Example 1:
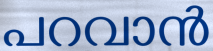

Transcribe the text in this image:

പറവാൻ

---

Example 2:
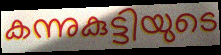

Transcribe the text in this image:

കന്നുകുട്ടിയുടെ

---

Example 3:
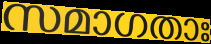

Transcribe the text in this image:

സമാഗതാഃ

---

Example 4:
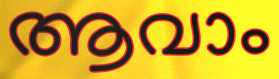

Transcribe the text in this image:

ആവാം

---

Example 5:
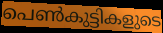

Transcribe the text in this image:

പെൺകുട്ടികളുടെ